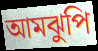
আমঝুপি